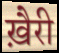
ख़ैरी